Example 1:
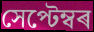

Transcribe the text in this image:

সেপ্টেম্বৰ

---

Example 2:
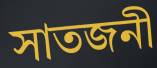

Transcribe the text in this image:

সাতজনী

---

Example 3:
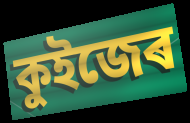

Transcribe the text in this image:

কুইজেৰ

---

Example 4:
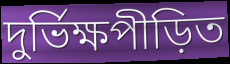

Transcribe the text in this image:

দুৰ্ভিক্ষপীড়িত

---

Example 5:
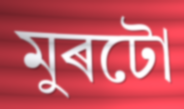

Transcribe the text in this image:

মুৰটো